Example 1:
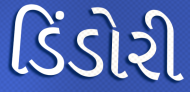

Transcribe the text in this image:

ડિંડોરી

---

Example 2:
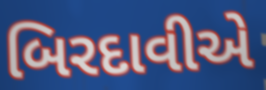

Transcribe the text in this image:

બિરદાવીએ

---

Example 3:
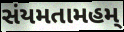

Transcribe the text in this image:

સંયમતામહમ્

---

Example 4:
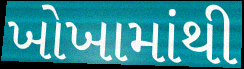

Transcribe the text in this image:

ખોખામાંથી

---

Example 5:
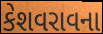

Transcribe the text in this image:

કેશવરાવના